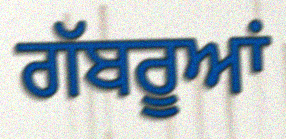
ਗੱਬਰੂਆਂ